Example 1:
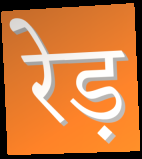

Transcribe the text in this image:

रेड़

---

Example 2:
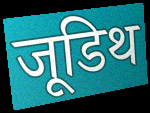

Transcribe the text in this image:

जूडिथ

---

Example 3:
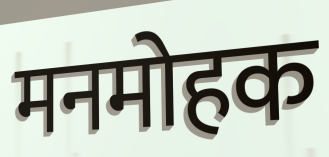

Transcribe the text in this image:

मनमोहक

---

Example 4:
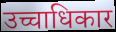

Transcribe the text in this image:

उच्‍चाधिकार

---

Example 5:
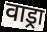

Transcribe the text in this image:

वाड्रा